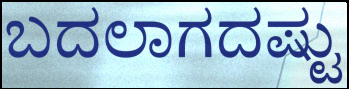
ಬದಲಾಗದಷ್ಟು